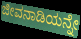
ಜೀವನಾಡಿಯನ್ನೇ